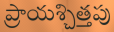
ప్రాయశ్చిత్తపు